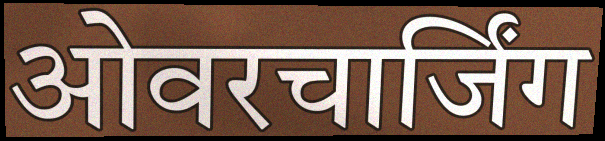
ओवरचार्जिंग